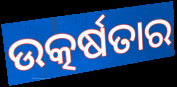
ଉତ୍କର୍ଷତାର